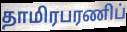
தாமிரபரணிப்